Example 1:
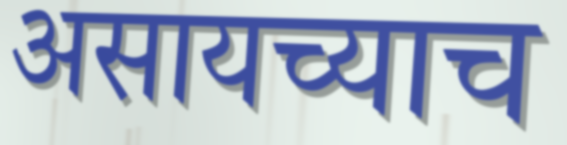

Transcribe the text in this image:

असायच्याच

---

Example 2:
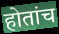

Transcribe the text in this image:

होतांच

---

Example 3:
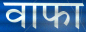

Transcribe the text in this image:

वाफा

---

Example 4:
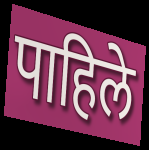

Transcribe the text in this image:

पाहिले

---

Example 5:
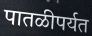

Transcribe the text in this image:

पातळीपर्यत